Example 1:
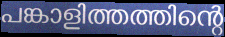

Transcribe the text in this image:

പങ്കാളിത്തത്തിന്റെ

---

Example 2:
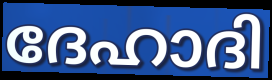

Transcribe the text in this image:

ദേഹാദി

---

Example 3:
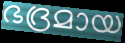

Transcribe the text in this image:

ഭദ്രമായ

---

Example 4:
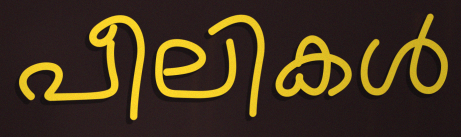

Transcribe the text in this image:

പീലികൾ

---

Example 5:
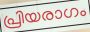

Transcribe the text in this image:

പ്രിയരാഗം